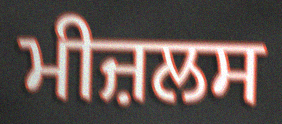
ਮੀਜ਼ਲਸ